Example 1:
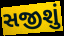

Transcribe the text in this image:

સજીશું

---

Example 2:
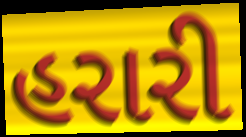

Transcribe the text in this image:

હરારી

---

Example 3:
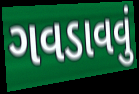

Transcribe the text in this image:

ગવડાવવું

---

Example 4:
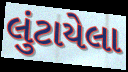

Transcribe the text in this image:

લુંટાયેલા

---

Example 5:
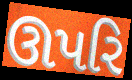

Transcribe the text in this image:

ઊપરિ